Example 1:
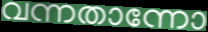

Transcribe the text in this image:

വന്നതാന്നോ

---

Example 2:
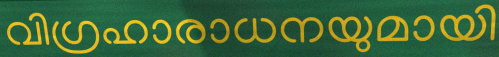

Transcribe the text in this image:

വിഗ്രഹാരാധനയുമായി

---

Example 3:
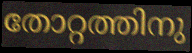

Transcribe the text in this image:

തോറ്റത്തിനു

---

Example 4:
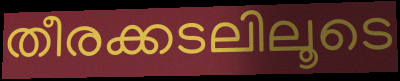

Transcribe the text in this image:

തീരക്കടലിലൂടെ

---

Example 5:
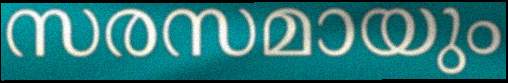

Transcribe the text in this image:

സരസമായും